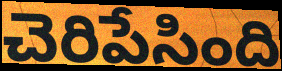
చెరిపేసింది